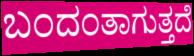
ಬಂದಂತಾಗುತ್ತದೆ